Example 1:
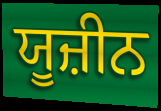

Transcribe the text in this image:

ਯੂਜ਼ੀਨ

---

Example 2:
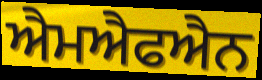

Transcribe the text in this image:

ਐਮਐਫਐਨ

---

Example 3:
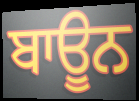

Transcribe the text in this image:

ਬਾਊਨ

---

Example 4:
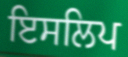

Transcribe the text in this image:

ਇਸਲਿਪ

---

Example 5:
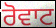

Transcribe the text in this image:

ਰੋਵਾਟ